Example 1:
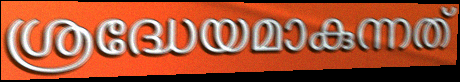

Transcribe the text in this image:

ശ്രദ്ധേയമാകുന്നത്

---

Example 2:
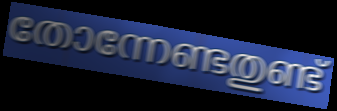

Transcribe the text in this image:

തോന്നേണ്ടതുണ്ട്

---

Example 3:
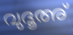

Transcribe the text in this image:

വുദൂഅ്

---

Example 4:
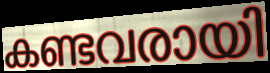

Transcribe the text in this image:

കണ്ടവരായി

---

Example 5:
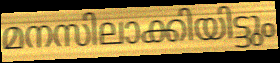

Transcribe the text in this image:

മനസിലാക്കിയിട്ടും